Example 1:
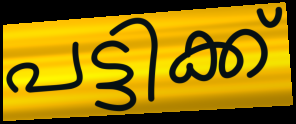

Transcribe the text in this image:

പട്ടിക്ക്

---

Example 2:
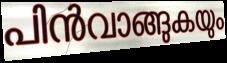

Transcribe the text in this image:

പിൻവാങ്ങുകയും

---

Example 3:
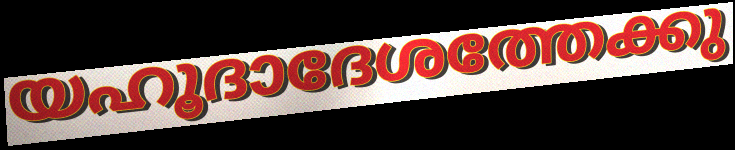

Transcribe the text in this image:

യഹൂദാദേശത്തേക്കു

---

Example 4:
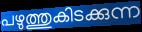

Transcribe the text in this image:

പഴുത്തുകിടക്കുന്ന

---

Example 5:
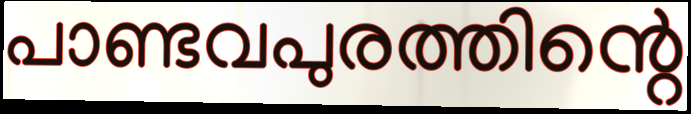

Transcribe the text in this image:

പാണ്ടവപുരത്തിന്റെ